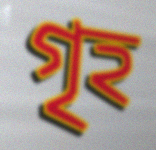
গৃহ